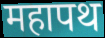
महापथ